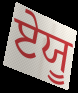
ਏਯੂ